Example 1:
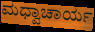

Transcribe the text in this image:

ಮಧ್ವಾಚಾರ್ಯ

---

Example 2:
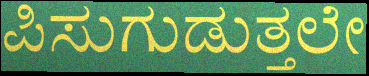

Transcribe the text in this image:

ಪಿಸುಗುಡುತ್ತಲೇ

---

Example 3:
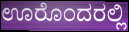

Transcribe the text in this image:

ಊರೊಂದರಲ್ಲಿ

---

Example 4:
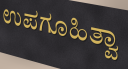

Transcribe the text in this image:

ಉಪಗೂಹಿತ್ವಾ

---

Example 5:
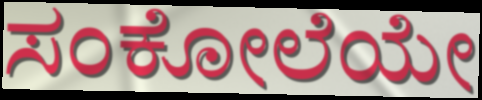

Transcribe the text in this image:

ಸಂಕೋಲೆಯೇ